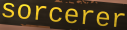
sorcerer